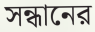
সন্ধানের